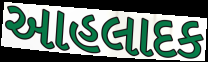
આહલાદક